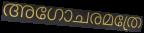
അഗോചരമത്രേ